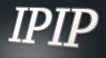
IPIP